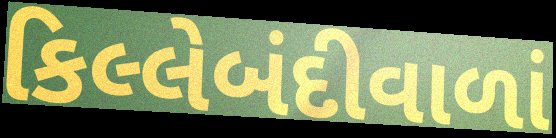
કિલ્લેબંદીવાળાં